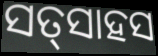
ସତ୍‌ସାହସ